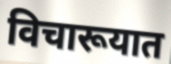
विचारूयात